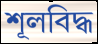
শূলবিদ্ধ